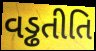
વડ્ઢતીતિ